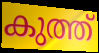
കുത്ത്